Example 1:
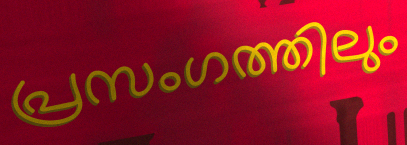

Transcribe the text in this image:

പ്രസംഗത്തിലും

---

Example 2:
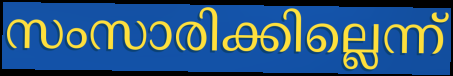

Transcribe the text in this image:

സംസാരിക്കില്ലെന്ന്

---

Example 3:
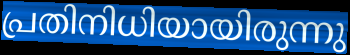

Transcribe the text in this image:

പ്രതിനിധിയായിരുന്നു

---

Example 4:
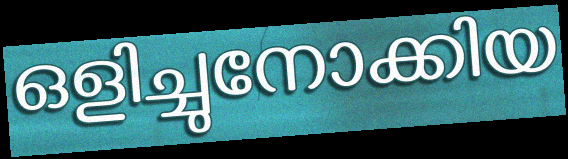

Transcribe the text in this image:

ഒളിച്ചുനോക്കിയ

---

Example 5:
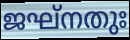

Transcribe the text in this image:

ജഘ്നതുഃ